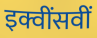
इक्वींसवीं